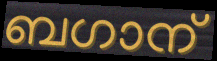
ബഗാന്